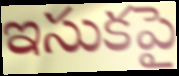
ఇసుకపై